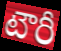
టౌరీ